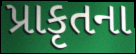
પ્રાકૃતના